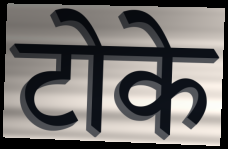
टोके